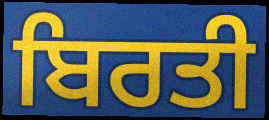
ਬਿਰਤੀ